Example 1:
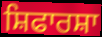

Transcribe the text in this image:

ਸ਼ਿਫਾਰਸ਼ਾ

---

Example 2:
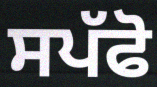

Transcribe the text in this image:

ਸਪੱਫੋ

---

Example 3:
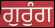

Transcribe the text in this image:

ਗੁਰੁੰਗ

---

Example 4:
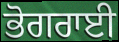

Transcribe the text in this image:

ਭੋਗਰਾਈ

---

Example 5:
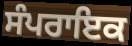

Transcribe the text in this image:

ਸੰਪਰਾਇਕ